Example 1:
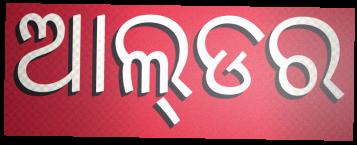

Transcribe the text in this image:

ଆଲ୍‌ଡର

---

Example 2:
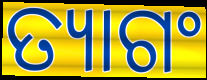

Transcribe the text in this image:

ତ୍ୟାଗଂ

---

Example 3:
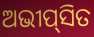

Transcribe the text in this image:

ଅଭୀପ୍‌ସିତ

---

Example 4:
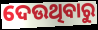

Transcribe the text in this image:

ଦେଉଥିବାରୁ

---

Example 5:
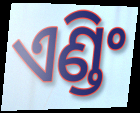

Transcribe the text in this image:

ଏଣ୍ଡିଂ